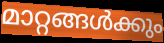
മാറ്റങ്ങൾക്കും